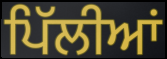
ਪਿੱਲੀਆਂ